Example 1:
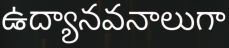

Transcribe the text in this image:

ఉద్యానవనాలుగా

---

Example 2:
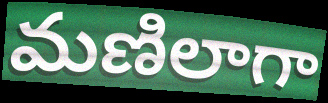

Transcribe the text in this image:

మణిలాగా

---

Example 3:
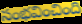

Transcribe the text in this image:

సంభవించింది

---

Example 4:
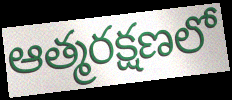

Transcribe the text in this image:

ఆత్మరక్షణలో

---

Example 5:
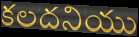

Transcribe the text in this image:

కలదనియు